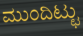
ಮುಂದಿಟ್ಟು